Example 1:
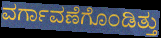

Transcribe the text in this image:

ವರ್ಗಾವಣೆಗೊಂಡಿತ್ತು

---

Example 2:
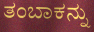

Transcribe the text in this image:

ತಂಬಾಕನ್ನು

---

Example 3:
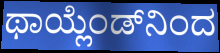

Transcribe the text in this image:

ಥಾಯ್ಲೆಂಡ್‌ನಿಂದ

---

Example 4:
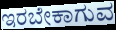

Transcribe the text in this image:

ಇರಬೇಕಾಗುವ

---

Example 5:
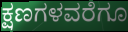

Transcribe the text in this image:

ಕ್ಷಣಗಳವರೆಗೂ